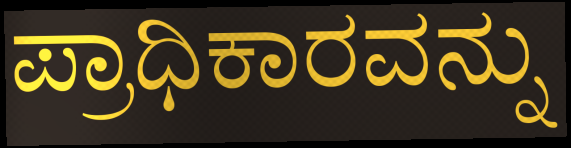
ಪ್ರಾಧಿಕಾರವನ್ನು